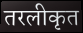
तरलीकृत